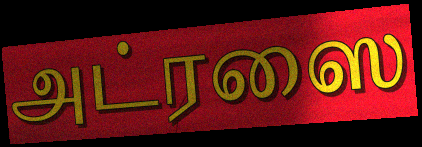
அட்ரஸை